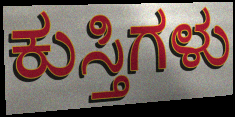
ಕುಸ್ತಿಗಳು